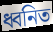
ধ্বনিত